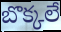
బొక్కలే